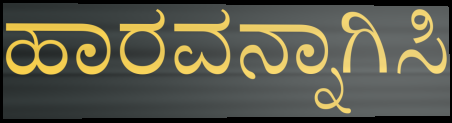
ಹಾರವನ್ನಾಗಿಸಿ